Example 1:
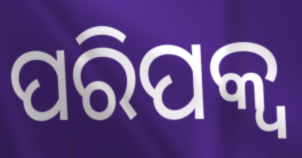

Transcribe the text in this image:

ପରିପକ୍ବ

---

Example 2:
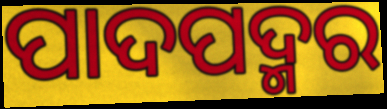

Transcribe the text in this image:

ପାଦପଦ୍ମର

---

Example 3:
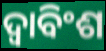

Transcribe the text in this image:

ଦ୍ୱାବିଂଶ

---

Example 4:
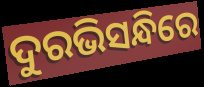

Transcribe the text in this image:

ଦୁରଭିସନ୍ଧିରେ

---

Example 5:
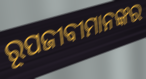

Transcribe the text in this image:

ରୂପଜୀବୀମାନଙ୍କର